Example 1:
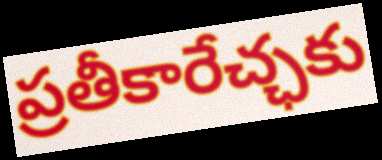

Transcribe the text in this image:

ప్రతీకారేచ్ఛకు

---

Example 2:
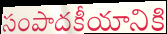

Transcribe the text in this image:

సంపాదకీయానికి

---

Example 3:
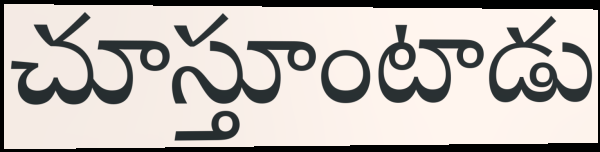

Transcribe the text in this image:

చూస్తూంటాడు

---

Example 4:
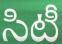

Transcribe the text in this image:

సిటీ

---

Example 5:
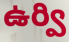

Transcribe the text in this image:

ఉర్వి